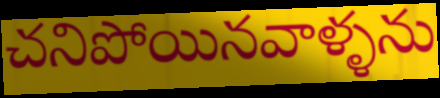
చనిపోయినవాళ్ళను